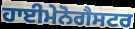
ਹਾਈਮੇਨੋਗੈਸਟਰ